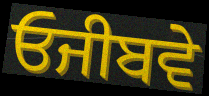
ਓਜੀਬਵੇ